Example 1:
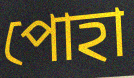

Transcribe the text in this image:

পোহা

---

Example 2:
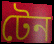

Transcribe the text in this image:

টেন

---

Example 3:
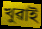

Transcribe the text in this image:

খুৱাই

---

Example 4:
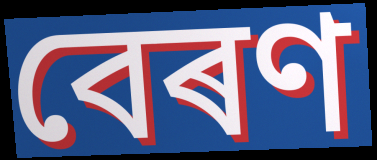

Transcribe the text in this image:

বেৰণ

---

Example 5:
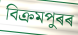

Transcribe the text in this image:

বিক্ৰমপুৰৰ